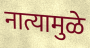
नात्यामुळे